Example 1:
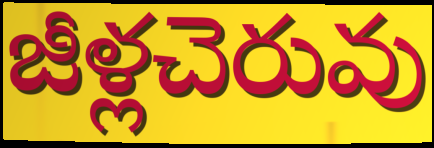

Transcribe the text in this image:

జీళ్లచెరువు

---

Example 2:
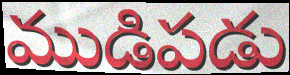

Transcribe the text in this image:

ముడిపడు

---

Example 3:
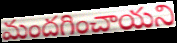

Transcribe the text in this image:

మందగించాయని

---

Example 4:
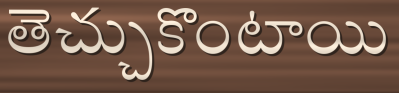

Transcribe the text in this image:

తెచ్చుకొంటాయి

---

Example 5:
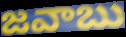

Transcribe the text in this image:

జవాబు